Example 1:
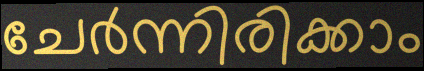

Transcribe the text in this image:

ചേർന്നിരിക്കാം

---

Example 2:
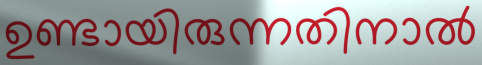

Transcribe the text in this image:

ഉണ്ടായിരുന്നതിനാൽ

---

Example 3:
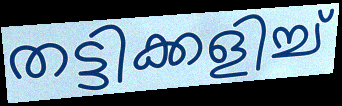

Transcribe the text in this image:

തട്ടിക്കളിച്ച്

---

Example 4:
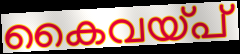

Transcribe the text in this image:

കൈവയ്പ്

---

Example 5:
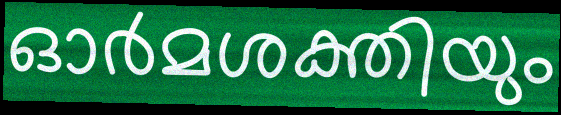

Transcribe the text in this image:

ഓർമശക്തിയും